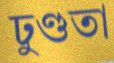
ঢুণ্ডতা